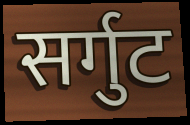
सर्गुट